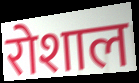
रोशाल